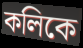
কলিকে